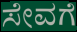
ಸೇವಗೆ